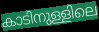
കാടിനുള്ളിലെ